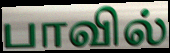
பாவில்